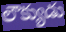
లౌక్యుడు